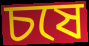
চষে